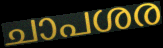
ചാപശര